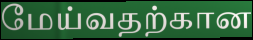
மேய்வதற்கான